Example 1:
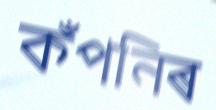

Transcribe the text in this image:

কঁপনিৰ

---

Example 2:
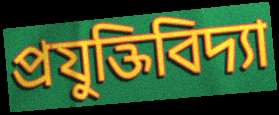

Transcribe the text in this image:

প্ৰযুক্তিবিদ্যা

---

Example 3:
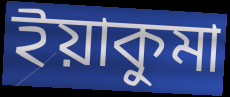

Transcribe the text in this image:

ইয়াকুমা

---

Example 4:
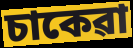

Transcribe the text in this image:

চাকেৱা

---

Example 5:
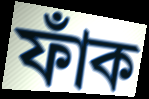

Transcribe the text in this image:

ফাঁক